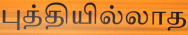
புத்தியில்லாத